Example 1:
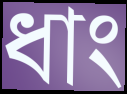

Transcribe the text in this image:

ধাং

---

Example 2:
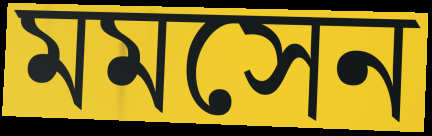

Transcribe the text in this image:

মমসেন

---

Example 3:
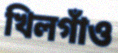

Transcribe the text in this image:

খিলগাঁও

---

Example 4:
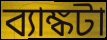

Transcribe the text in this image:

ব্যাঙ্কটা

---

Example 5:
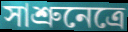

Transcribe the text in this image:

সাশ্রুনেত্রে